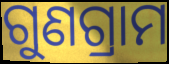
ଗୁଣଗ୍ରାମ